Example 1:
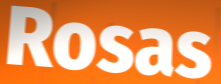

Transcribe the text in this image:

Rosas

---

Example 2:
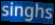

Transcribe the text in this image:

singhs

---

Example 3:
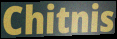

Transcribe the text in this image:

Chitnis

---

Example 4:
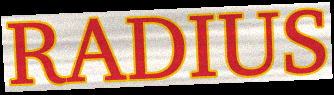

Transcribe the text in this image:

RADIUS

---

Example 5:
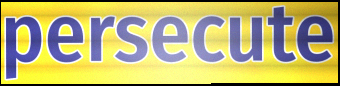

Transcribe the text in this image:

persecute